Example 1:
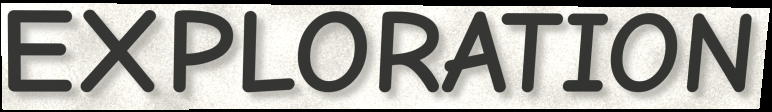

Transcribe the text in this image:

EXPLORATION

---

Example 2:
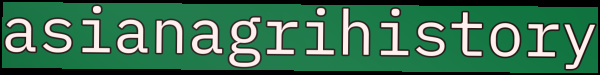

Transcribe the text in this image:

asianagrihistory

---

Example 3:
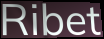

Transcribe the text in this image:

Ribet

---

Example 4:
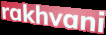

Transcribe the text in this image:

rakhvani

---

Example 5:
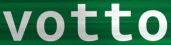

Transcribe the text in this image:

votto